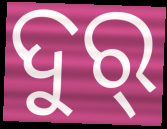
ଦୁର୍